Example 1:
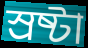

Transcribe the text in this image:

স্রষ্টা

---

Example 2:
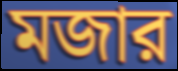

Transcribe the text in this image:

মজার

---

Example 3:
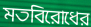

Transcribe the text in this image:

মতবিরোধের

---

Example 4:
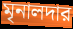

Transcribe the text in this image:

মৃনালদার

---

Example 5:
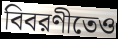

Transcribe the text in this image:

বিবরণীতেও